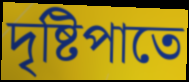
দৃষ্টিপাতে